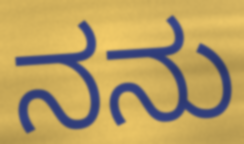
ನನು